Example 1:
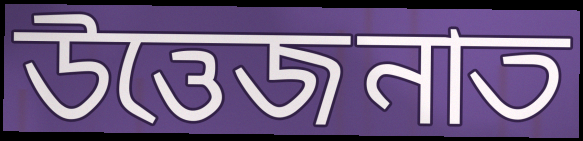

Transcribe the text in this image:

উত্তেজনাত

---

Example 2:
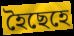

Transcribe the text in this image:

হৈছেহে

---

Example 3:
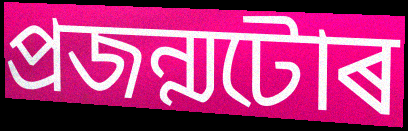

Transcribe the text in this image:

প্ৰজন্মটোৰ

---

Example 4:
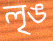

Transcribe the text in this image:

লৃঙ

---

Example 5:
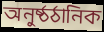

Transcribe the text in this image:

অনুষ্ঠঠানিক